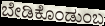
ಬೇಡಿಕೊಂಡುಂಬ